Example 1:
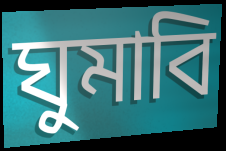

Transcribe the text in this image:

ঘুমাবি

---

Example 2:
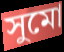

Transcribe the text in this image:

সুমো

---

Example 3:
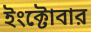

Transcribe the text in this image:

ইংক্টোবার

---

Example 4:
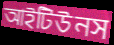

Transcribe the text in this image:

আইটিউনস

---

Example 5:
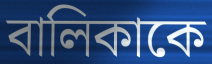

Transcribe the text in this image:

বালিকাকে